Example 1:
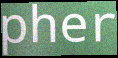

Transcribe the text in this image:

pher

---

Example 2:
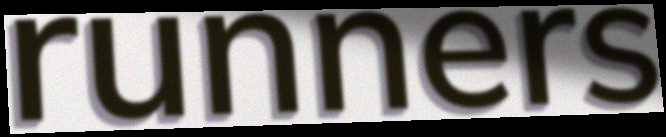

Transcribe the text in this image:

runners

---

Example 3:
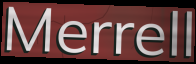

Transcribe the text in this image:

Merrell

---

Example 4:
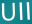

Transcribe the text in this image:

UII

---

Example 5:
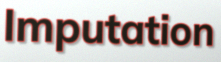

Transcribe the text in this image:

Imputation